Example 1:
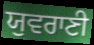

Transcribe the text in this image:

ਯੁਵਰਾਣੀ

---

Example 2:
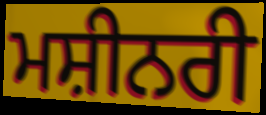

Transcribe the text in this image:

ਮਸ਼ੀਨਰੀ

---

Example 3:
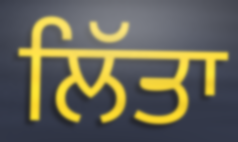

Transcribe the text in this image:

ਲਿੱਤਾ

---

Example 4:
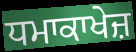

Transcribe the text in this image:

ਧਮਾਕਾਖੇਜ਼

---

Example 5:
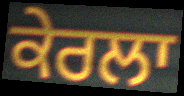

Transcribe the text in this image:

ਕੇਰਲਾ